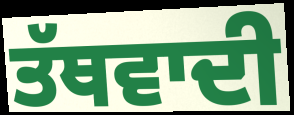
ਤੱਥਵਾਦੀ